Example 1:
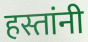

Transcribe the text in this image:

हस्तांनी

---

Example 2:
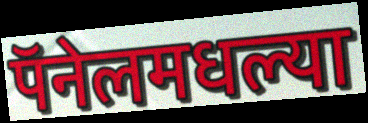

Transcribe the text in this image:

पॅनेलमधल्या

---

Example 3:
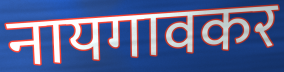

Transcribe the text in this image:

नायगावकर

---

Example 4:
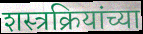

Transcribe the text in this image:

शस्त्रक्रियांच्या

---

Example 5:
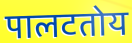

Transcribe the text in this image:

पालटतोय